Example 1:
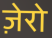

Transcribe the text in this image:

ज़ेरो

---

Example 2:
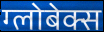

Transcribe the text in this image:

ग्लोबेक्स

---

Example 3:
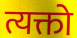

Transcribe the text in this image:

त्यक्तो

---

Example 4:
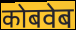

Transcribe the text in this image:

कोबवेब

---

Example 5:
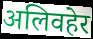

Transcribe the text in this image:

अलिवहेर